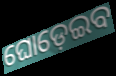
ଘୋଡ଼େଇବ